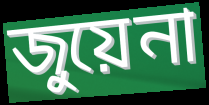
জুয়েনা